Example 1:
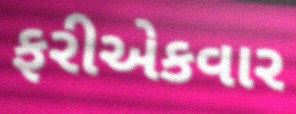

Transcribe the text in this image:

ફરીએકવાર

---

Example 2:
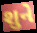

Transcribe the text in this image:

શુને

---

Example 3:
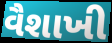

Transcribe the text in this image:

વૈશાખી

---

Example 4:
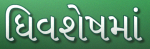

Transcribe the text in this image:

ધિવશેષમાં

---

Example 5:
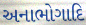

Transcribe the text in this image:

અનાભોગાદિ